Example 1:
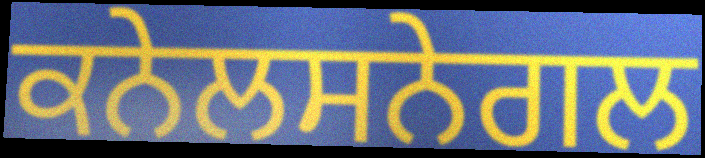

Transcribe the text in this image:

ਕਨੇਲਸਨੇਗਲ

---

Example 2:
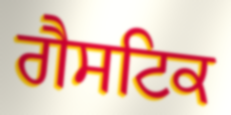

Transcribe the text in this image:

ਗੈਸਟਿਕ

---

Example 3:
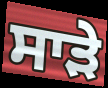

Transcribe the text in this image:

ਸਾੜੇ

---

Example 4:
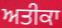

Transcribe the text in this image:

ਅਤੀਕਾ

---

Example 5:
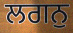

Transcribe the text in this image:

ਲਗਨੁ